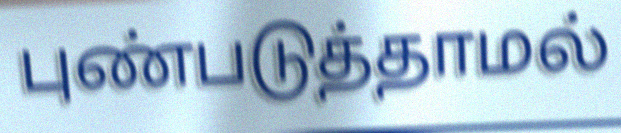
புண்படுத்தாமல்